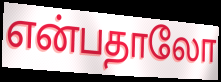
என்பதாலோ